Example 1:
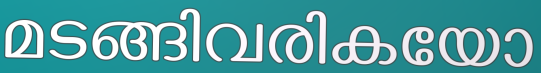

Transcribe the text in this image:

മടങ്ങിവരികയോ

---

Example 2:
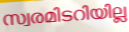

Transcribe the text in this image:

സ്വരമിടറിയില്ല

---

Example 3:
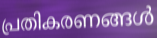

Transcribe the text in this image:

പ്രതികരണങ്ങൾ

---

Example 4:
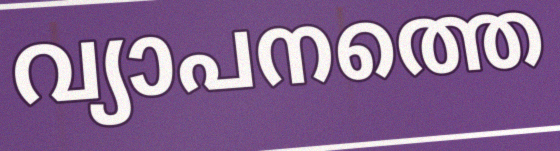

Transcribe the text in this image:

വ്യാപനത്തെ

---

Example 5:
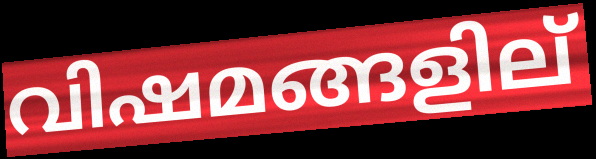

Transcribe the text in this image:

വിഷമങ്ങളില്